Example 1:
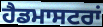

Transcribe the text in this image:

ਹੈਡਮਾਸਟਰਾਂ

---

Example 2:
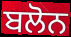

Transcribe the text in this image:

ਬਲੋਨ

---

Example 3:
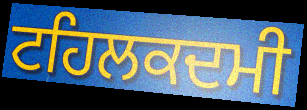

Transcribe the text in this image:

ਟਹਿਲਕਦਮੀ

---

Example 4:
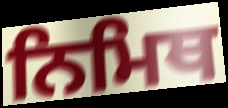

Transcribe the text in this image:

ਨਿਮਿਥ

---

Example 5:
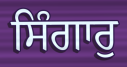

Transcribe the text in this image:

ਸਿੰਗਾਰੁ